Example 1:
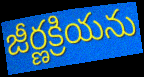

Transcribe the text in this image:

జీర్ణక్రియను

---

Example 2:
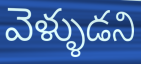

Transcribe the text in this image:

వెళ్ళుడని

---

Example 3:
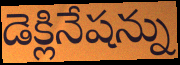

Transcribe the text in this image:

డెక్లినేషన్ను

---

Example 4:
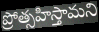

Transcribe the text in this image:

ప్రోత్సహిస్తామని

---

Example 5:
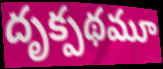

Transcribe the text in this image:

దృక్పథమూ